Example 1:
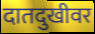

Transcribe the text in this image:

दातदुखीवर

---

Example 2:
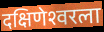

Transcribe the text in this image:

दक्षिणेश्वरला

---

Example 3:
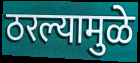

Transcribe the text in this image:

ठरल्यामुळे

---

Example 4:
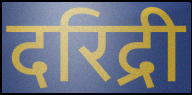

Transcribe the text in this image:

दरिद्री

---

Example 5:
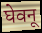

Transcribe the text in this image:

घेवनू